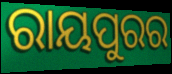
ରାୟପୁରର